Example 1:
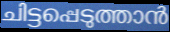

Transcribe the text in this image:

ചിട്ടപ്പെടുത്താൻ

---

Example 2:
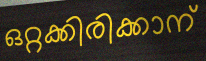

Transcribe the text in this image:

ഒറ്റക്കിരിക്കാന്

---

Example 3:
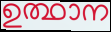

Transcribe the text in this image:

ഉത്ഥാന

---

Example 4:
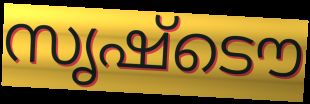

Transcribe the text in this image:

സൃഷ്ടൌ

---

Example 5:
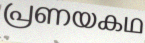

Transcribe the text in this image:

പ്രണയകഥ